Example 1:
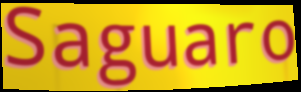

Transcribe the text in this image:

Saguaro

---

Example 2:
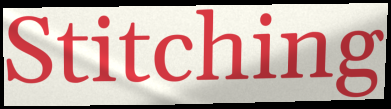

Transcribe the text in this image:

Stitching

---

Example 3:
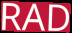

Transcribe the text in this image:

RAD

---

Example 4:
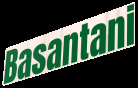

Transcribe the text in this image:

Basantani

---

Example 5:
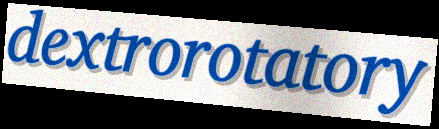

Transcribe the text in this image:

dextrorotatory